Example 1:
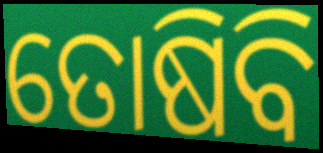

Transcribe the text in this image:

ତୋଷିବି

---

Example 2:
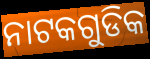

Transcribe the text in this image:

ନାଟକଗୁଡିକ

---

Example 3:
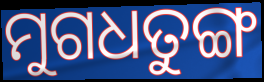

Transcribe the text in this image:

ମୁଗଧତୁଙ୍ଗ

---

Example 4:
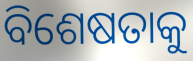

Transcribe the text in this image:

ବିଶେଷତାକୁ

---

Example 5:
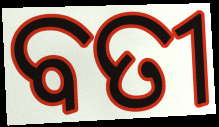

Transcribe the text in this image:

ବତୀ